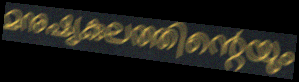
മനുഷ്യകുലത്തിന്റെയും